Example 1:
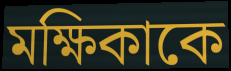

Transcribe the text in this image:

মক্ষিকাকে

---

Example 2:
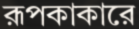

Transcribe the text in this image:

রূপকাকারে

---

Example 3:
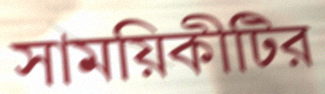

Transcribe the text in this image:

সাময়িকীটির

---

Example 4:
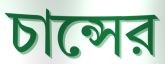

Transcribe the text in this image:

চান্সের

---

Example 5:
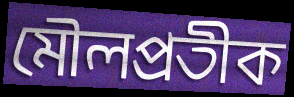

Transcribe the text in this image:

মৌলপ্রতীক